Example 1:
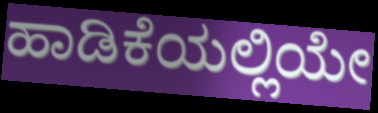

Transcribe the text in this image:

ಹಾಡಿಕೆಯಲ್ಲಿಯೇ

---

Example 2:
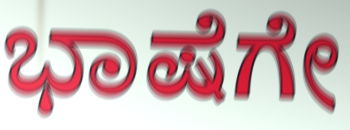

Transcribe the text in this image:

ಭಾಷೆಗೇ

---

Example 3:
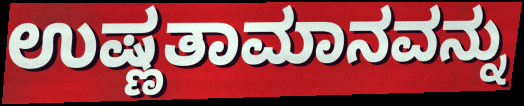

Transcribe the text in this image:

ಉಷ್ಣತಾಮಾನವನ್ನು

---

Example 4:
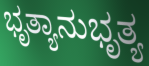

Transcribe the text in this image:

ಭೃತ್ಯಾನುಭೃತ್ಯ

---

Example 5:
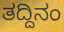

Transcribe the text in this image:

ತದ್ದಿನಂ